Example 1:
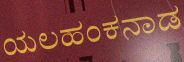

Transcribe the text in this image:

ಯಲಹಂಕನಾಡ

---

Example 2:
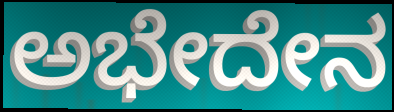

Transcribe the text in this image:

ಅಭೇದೇನ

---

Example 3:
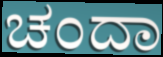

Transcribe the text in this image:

ಚಂದಾ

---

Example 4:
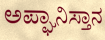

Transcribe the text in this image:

ಅಪ್ಘಾನಿಸ್ತಾನ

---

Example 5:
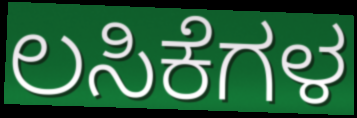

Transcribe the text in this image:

ಲಸಿಕೆಗಳ